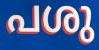
പശു